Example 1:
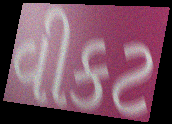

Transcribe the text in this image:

વીકટ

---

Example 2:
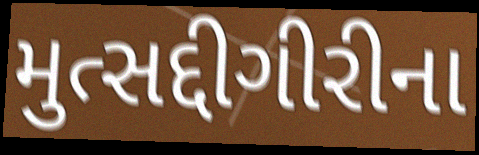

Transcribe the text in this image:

મુત્સદ્દીગીરીના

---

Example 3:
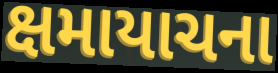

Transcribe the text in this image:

ક્ષમાયાચના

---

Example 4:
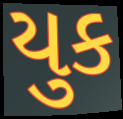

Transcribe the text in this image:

યુક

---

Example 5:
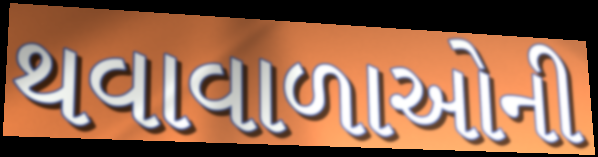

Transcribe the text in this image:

થવાવાળાઓની